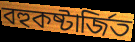
বহুকষ্টার্জিত